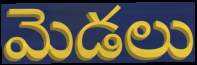
మెడలు